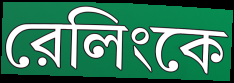
রেলিংকে